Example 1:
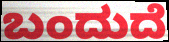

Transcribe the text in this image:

ಬಂದುದೆ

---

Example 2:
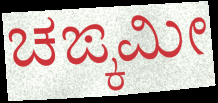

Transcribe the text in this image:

ಚಙ್ಕಮೀ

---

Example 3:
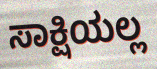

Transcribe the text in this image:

ಸಾಕ್ಷಿಯಲ್ಲ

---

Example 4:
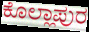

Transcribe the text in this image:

ಕೊಲ್ಲಾಪುರ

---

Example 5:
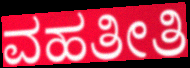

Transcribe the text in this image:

ವಹತೀತಿ